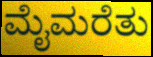
ಮೈಮರೆತು